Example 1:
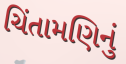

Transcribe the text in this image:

ચિંતામણિનું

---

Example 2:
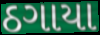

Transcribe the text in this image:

ઠગાયા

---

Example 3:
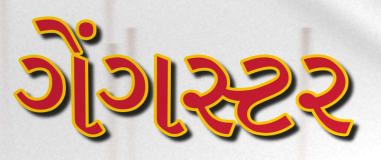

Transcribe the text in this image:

ગેંગસ્ટર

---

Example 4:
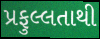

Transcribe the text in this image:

પ્રફુલ્લતાથી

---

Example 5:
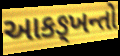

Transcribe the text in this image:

આકઙ્ખન્તો